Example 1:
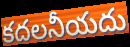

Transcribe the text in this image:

కదలనీయదు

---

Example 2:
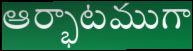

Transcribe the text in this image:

ఆర్భాటముగా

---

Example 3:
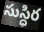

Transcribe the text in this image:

సుస్ధిర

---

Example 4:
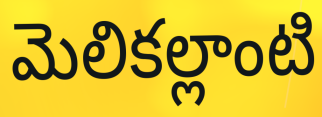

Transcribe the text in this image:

మెలికల్లాంటి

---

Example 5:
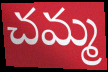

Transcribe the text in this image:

చమ్మ